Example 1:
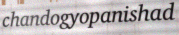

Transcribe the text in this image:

chandogyopanishad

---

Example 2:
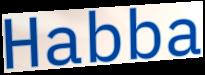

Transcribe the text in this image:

Habba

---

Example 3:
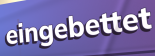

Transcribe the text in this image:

eingebettet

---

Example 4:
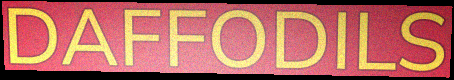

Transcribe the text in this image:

DAFFODILS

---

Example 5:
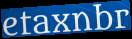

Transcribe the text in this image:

etaxnbr